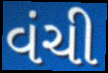
વંચી